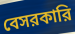
বেসরকারি